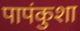
पापंकुशा